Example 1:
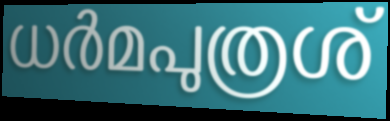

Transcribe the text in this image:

ധർമപുത്രശ്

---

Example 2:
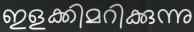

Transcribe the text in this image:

ഇളക്കിമറിക്കുന്നു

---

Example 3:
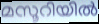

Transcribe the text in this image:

മസൂറിയിൽ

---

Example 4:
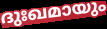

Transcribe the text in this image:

ദുഃഖമായും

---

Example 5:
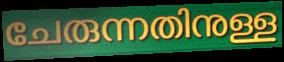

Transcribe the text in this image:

ചേരുന്നതിനുള്ള